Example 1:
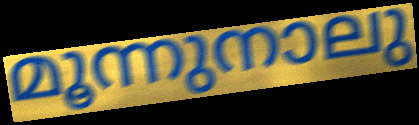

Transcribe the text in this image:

മൂന്നുനാലു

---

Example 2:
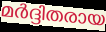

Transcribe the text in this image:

മർദ്ദിതരായ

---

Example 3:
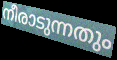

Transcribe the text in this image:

നീരാടുന്നതും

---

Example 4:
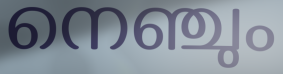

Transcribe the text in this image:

നെഞ്ചും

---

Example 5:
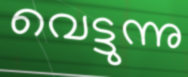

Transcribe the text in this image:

വെട്ടുന്നു